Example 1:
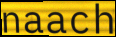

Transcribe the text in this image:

naach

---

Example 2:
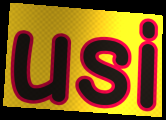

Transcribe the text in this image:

usi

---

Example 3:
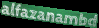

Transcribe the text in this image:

alfazanambd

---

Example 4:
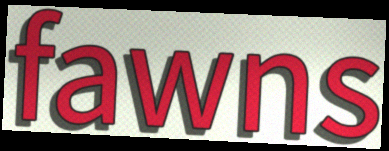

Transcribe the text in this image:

fawns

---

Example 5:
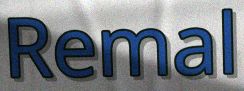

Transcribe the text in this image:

Remal